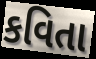
કવિતા